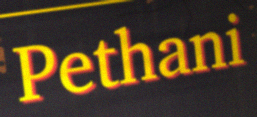
Pethani